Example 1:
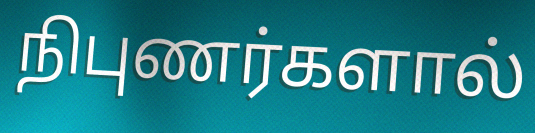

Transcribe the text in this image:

நிபுணர்களால்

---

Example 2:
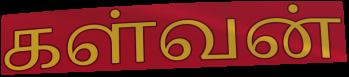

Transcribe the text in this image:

கள்வன்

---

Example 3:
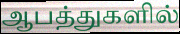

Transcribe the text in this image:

ஆபத்துகளில்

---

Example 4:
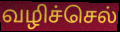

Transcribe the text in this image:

வழிச்செல்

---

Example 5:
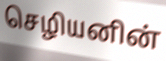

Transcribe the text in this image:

செழியனின்